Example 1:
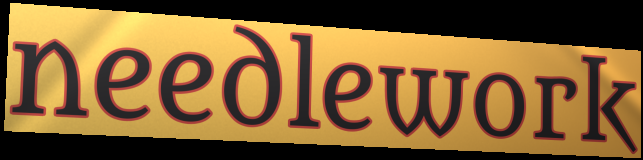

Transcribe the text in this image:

needlework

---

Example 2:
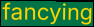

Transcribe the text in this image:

fancying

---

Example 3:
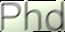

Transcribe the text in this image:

Phd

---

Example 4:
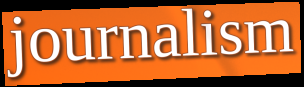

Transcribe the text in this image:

journalism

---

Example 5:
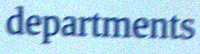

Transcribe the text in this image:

departments